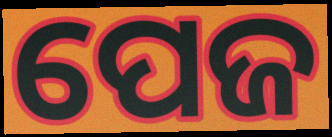
ପେଜ